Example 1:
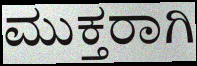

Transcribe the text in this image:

ಮುಕ್ತರಾಗಿ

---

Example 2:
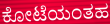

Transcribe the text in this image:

ಕೋಟೆಯಂತಹ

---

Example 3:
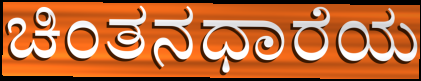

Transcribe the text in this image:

ಚಿಂತನಧಾರೆಯ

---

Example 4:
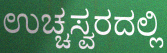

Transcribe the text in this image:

ಉಚ್ಚಸ್ವರದಲ್ಲಿ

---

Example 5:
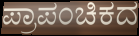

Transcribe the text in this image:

ಪ್ರಾಪಂಚಿಕದ